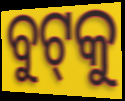
ବୁଟ୍‌କୁ